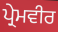
ਪ੍ਰੇਮਵੀਰ